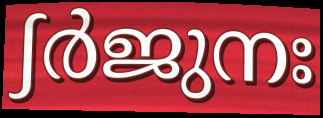
ഽർജുനഃ